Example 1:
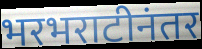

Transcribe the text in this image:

भरभराटीनंतर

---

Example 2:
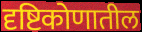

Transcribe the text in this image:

दृष्टिकोणातील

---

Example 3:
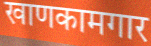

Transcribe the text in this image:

खाणकामगार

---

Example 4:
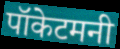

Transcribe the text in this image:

पॉकेटमनी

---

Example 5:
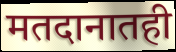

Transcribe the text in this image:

मतदानातही